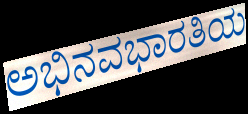
ಅಭಿನವಭಾರತಿಯ